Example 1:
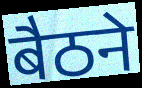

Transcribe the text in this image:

बैठने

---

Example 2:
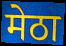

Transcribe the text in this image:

मेठा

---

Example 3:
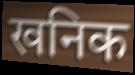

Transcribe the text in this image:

खनिक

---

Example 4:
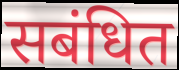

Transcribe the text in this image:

सबंधित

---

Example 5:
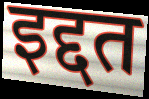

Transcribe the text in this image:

इद्दत